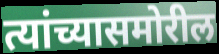
त्यांच्यासमोरील